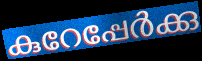
കുറേപ്പേർക്കു